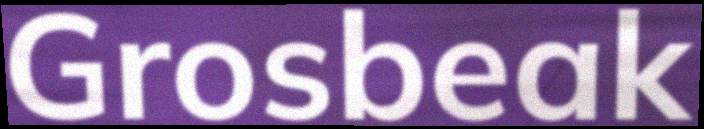
Grosbeak